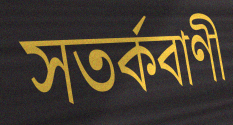
সতৰ্কবাণী